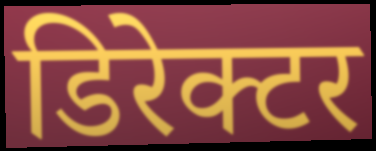
डिरेक्टर